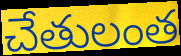
చేతులంత